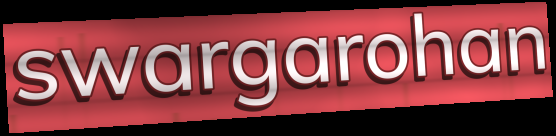
swargarohan